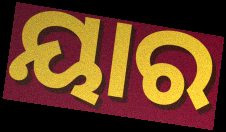
ୟାର